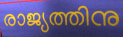
രാജ്യത്തിനു